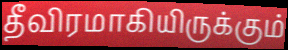
தீவிரமாகியிருக்கும்